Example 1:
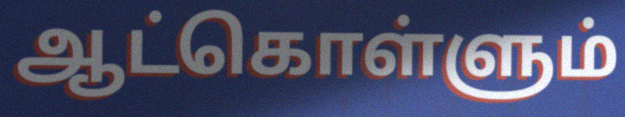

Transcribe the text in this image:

ஆட்கொள்ளும்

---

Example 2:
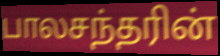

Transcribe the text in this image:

பாலசந்தரின்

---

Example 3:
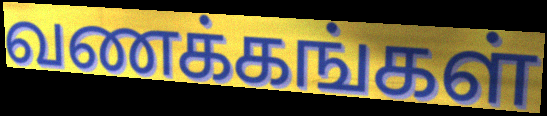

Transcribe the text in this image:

வணக்கங்கள்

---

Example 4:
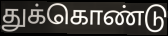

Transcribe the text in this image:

துக்கொண்டு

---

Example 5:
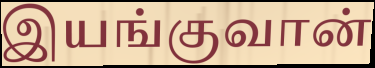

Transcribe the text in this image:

இயங்குவான்